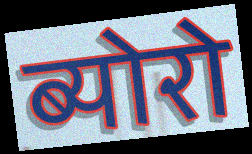
ब्योरो